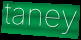
taney